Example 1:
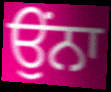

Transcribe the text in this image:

ਉੰਨਾ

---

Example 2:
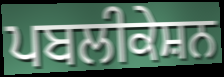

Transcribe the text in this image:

ਪਬਲੀਕੇਸ਼ਨ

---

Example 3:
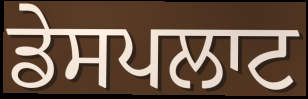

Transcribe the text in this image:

ਡੇਸਪਲਾਟ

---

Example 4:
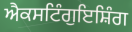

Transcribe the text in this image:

ਐਕਸਟਿੰਗੁਇਸ਼ਿੰਗ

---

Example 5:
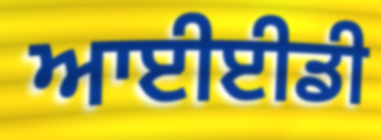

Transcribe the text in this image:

ਆਈਈਡੀ